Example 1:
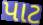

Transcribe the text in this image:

પાટ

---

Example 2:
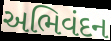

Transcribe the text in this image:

અભિવંદન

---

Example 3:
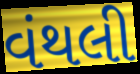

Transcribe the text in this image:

વંથલી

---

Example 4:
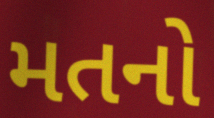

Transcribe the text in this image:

મતનો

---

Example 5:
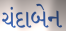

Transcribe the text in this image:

ચંદાબેન